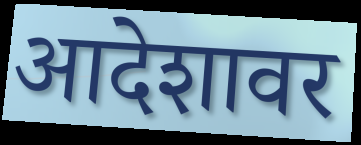
आदेशावर